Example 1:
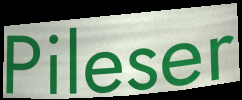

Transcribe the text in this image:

Pileser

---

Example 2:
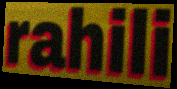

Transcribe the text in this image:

rahili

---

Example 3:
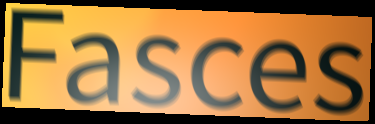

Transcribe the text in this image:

Fasces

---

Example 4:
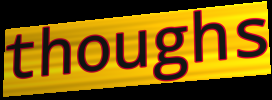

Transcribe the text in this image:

thoughs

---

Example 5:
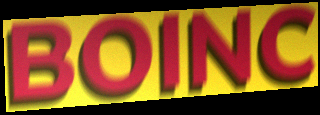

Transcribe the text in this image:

BOINC